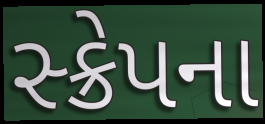
સ્ક્રેપના